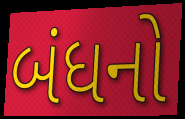
બંધનો